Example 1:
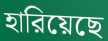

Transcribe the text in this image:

হারিয়েছে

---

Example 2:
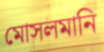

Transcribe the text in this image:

মোসলমানি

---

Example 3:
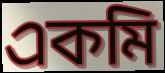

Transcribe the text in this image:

একমি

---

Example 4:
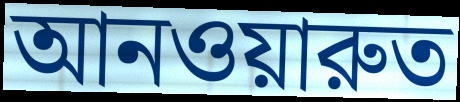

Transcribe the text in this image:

আনওয়ারুত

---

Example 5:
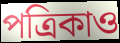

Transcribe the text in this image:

পত্রিকাও